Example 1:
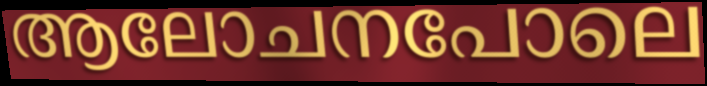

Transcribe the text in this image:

ആലോചനപോലെ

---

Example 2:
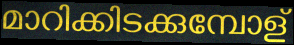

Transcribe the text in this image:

മാറിക്കിടക്കുമ്പോള്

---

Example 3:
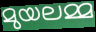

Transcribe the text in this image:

മുയലമ്മ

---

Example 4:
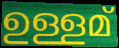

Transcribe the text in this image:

ഉള്ളമ്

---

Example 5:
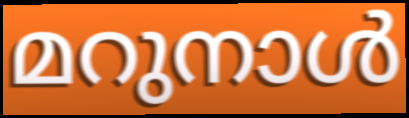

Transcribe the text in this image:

മറുനാൾ